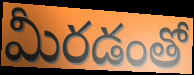
మీరడంతో